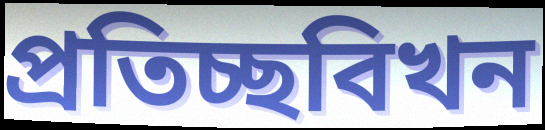
প্ৰতিচ্ছবিখন